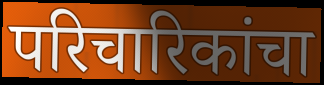
परिचारिकांचा